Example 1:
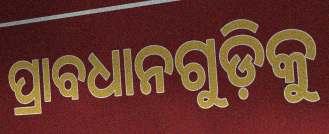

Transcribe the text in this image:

ପ୍ରାବଧାନଗୁଡ଼ିକୁ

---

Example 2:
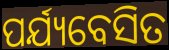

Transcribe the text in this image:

ପର୍ଯ୍ୟବେସିତ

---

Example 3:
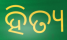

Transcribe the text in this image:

ହିତ୍ୟ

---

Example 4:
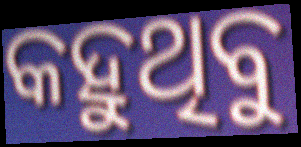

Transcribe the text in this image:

କହୁଥିବୁ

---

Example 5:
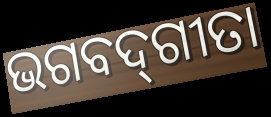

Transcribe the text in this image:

ଭଗବଦ୍‌ଗୀତା